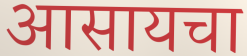
आसायचा